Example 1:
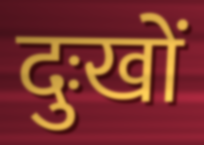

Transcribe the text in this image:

दुःखों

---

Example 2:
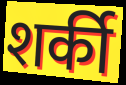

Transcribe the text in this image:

शर्की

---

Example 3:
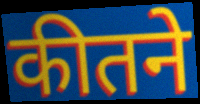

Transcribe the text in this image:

कीतने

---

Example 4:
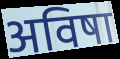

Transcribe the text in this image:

अविषा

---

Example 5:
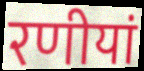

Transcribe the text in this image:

रणीयां